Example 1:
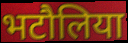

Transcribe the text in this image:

भटौलिया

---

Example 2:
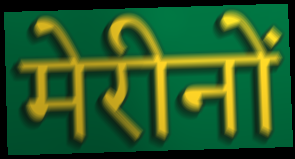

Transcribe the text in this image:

मेरीनों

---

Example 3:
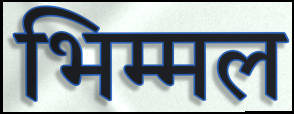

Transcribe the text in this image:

भिम्मल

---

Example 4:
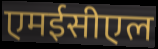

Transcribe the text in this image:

एमईसीएल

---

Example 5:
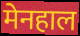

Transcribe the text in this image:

मेनहाल